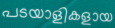
പടയാളികളായ